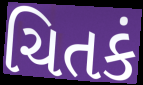
ચિતકં